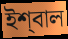
ইশ্‌বাল